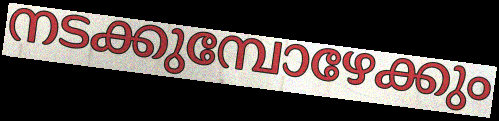
നടക്കുമ്പോഴേക്കും